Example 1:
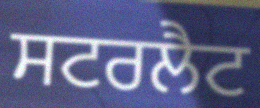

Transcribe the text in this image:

ਸਟਰਲੈਟ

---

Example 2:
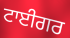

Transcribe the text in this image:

ਟਾਈਗਰ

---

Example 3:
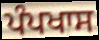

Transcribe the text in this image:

ਪੰਪਖਾਸ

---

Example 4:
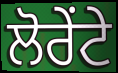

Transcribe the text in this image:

ਲੋਰੇਂਟੇ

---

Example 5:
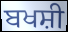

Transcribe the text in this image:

ਬਖਸ਼ੀ